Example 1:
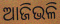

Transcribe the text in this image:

ଆଜିଭଳି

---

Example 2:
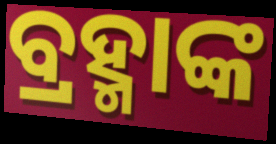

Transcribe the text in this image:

ବ୍ରହ୍ମାଙ୍କ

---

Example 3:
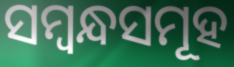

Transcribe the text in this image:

ସମ୍ୱନ୍ଧସମୂହ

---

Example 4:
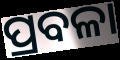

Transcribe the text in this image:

ପ୍ରବଳା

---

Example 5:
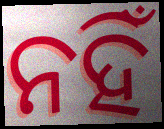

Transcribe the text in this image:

ନହିଁ